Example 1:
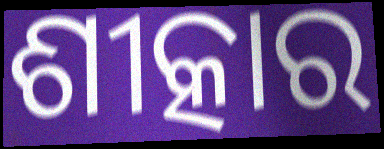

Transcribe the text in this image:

ଶୀତ୍କାର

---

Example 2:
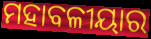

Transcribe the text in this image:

ମହାବଳୀୟାର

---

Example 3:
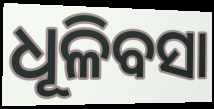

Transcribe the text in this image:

ଧୂଳିବସା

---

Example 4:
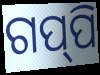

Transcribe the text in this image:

ଗପ୍‌ପି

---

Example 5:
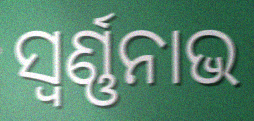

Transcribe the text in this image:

ସ୍ବର୍ଣ୍ଣନାଭ